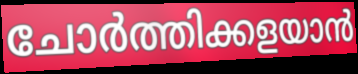
ചോർത്തിക്കളയാൻ